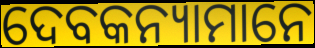
ଦେବକନ୍ୟାମାନେ